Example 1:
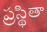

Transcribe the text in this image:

ప్రస్థితా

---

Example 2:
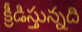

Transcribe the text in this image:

క్రీడిస్తున్నది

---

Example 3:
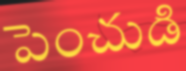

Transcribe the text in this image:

పెంచుడి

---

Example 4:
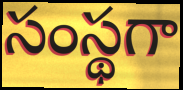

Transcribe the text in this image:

సంస్థగా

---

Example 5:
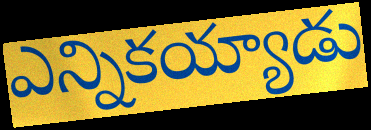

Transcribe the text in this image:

ఎన్నికయ్యాడు